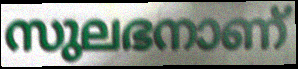
സുലഭനാണ്